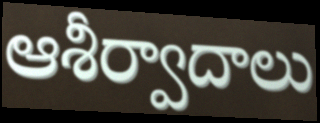
ఆశీర్వాదాలు